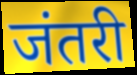
जंतरी